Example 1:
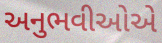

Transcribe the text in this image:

અનુભવીઓએ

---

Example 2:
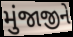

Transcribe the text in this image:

મુંજાજીને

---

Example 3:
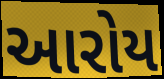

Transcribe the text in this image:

આરોય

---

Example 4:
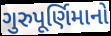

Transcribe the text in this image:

ગુરુપૂર્ણિમાનો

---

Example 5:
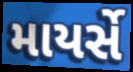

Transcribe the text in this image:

માયર્સે